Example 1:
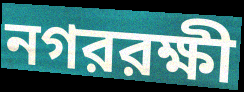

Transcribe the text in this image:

নগররক্ষী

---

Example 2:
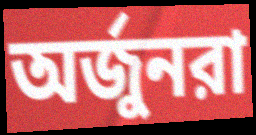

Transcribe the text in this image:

অর্জুনরা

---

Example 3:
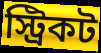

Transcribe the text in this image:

স্ট্রিকট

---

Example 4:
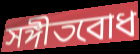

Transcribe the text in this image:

সঙ্গীতবোধ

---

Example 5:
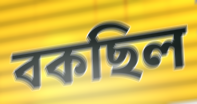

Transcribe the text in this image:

বকছিল